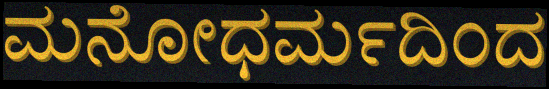
ಮನೋಧರ್ಮದಿಂದ